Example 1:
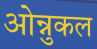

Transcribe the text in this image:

ओन्नुकल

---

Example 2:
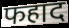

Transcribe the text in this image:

फहाद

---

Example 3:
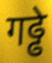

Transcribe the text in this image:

गढ्ढे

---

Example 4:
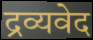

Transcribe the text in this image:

द्रव्यवेद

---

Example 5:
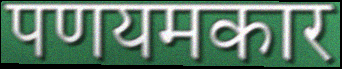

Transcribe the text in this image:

पणयमकार